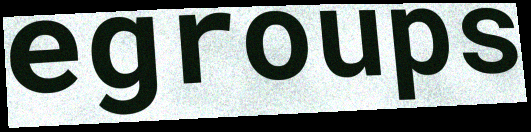
egroups